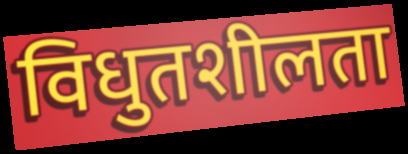
विधुतशीलता